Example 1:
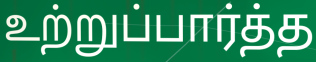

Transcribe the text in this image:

உற்றுப்பார்த்த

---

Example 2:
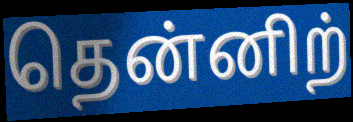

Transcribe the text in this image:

தென்னிற்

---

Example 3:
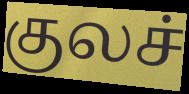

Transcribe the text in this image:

குலச்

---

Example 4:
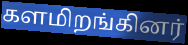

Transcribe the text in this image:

களமிறங்கினர்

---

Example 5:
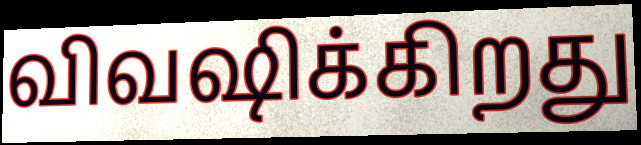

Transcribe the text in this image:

விவஷிக்கிறது